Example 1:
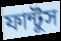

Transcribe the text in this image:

ফান্টুস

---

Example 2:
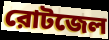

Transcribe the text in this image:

রোটজেল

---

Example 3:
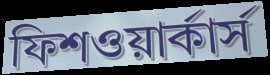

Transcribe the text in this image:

ফিশওয়ার্কার্স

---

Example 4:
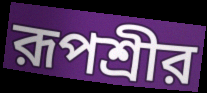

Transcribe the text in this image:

রূপশ্রীর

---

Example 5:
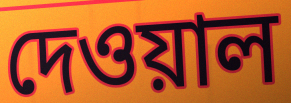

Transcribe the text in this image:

দেওয়াল